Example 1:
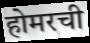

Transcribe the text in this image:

होमरची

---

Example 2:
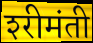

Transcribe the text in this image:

श्रीमंती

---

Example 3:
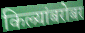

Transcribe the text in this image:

किल्यांबरोबर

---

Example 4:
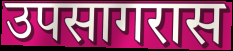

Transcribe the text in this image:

उपसागरास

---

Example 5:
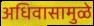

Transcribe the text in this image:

अधिवासामुळे